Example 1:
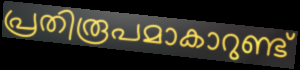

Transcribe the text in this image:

പ്രതിരൂപമാകാറുണ്ട്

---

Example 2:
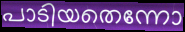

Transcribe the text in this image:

പാടിയതെന്നോ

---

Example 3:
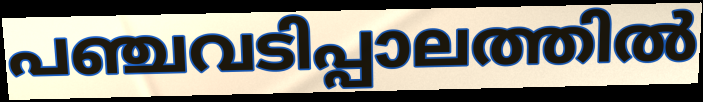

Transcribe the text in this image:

പഞ്ചവടിപ്പാലത്തിൽ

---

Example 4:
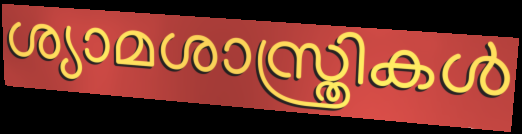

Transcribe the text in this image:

ശ്യാമശാസ്ത്രികൾ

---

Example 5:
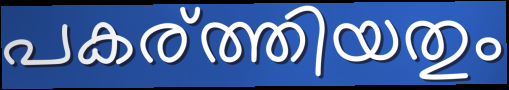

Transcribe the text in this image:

പകര്ത്തിയതും